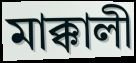
মাক্কালী